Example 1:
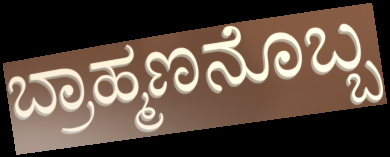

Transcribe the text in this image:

ಬ್ರಾಹ್ಮಣನೊಬ್ಬ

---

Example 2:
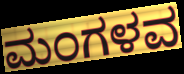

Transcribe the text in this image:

ಮಂಗಳವ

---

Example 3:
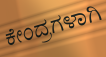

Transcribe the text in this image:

ಕೇಂದ್ರಗಳಾಗಿ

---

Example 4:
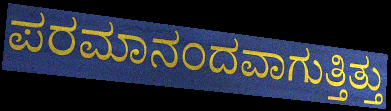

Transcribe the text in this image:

ಪರಮಾನಂದವಾಗುತ್ತಿತ್ತು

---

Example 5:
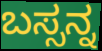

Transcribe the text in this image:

ಬಸ್ಸನ್ನ